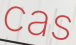
cas